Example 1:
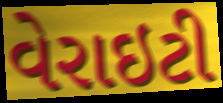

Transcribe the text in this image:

વેરાઇટી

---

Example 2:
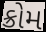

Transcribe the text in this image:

ક્રોમ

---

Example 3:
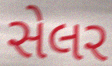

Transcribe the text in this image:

સેલર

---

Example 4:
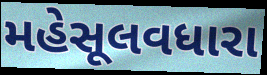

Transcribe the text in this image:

મહેસૂલવધારા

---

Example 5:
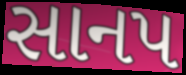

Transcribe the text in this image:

સાનપ